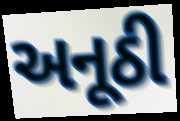
અનૂઠી